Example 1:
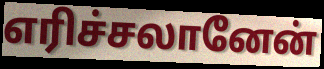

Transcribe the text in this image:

எரிச்சலானேன்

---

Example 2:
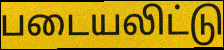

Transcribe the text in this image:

படையலிட்டு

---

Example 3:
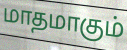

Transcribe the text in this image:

மாதமாகும்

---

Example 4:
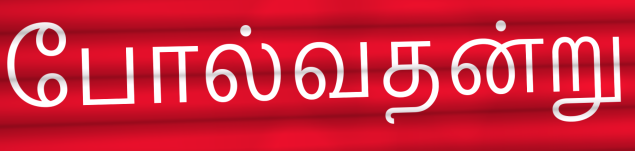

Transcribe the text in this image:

போல்வதன்று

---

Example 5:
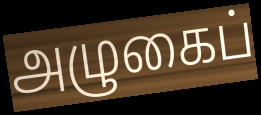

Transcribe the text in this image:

அழுகைப்